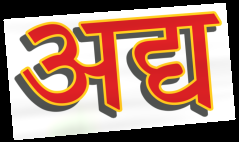
अद्य